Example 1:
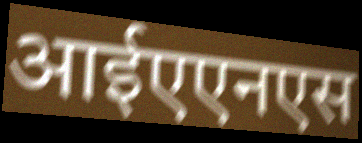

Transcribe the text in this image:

आईएएनएस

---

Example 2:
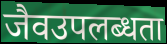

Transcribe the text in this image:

जैवउपलब्धता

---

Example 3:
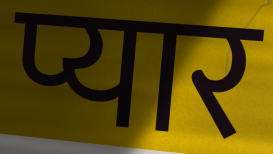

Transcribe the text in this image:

प्यार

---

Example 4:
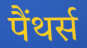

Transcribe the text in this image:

पैंथर्स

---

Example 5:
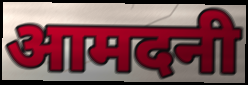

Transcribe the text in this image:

आमदनी